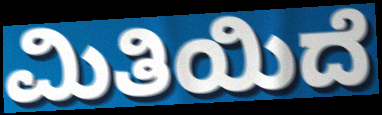
ಮಿತಿಯಿದೆ